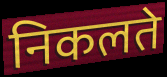
निकलते